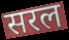
सरल